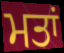
ਮਤਾਂ